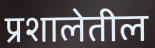
प्रशालेतील